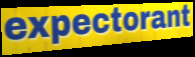
expectorant